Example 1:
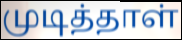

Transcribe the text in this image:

முடித்தாள்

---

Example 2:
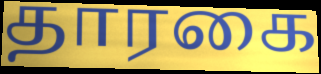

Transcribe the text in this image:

தாரகை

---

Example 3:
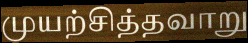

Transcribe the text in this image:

முயற்சித்தவாறு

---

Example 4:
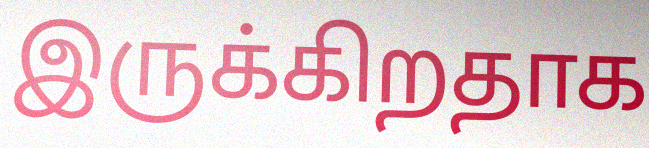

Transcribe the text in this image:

இருக்கிறதாக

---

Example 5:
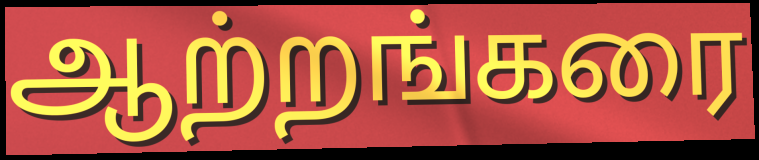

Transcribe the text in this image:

ஆற்றங்கரை